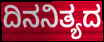
ದಿನನಿತ್ಯದ